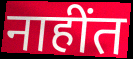
नाहींत